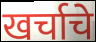
खर्चाचे